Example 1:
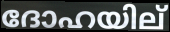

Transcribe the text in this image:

ദോഹയില്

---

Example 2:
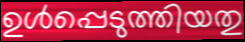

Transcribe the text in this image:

ഉൾപ്പെടുത്തിയതു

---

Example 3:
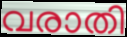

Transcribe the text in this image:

വരാതി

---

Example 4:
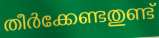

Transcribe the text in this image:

തീർക്കേണ്ടതുണ്ട്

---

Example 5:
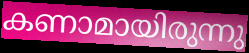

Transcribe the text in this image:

കണാമായിരുന്നു